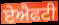
ਏਐਫਟੀ